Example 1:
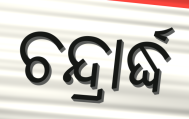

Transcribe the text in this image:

ଚନ୍ଦ୍ରାର୍ଦ୍ଧ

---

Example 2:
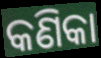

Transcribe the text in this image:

କଣିକା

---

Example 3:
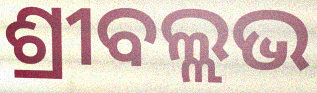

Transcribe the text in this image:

ଶ୍ରୀବଲ୍ଲଭ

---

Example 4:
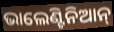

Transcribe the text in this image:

ଭାଲେଣ୍ଟିନିଆନ୍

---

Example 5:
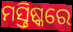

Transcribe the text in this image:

ମସ୍ତିଷ୍କରେ